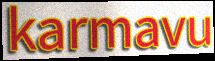
karmavu